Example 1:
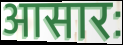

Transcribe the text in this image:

आसारः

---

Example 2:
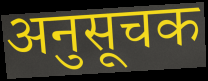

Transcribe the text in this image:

अनुसूचक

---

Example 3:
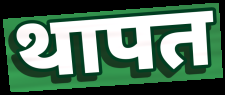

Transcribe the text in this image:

थापत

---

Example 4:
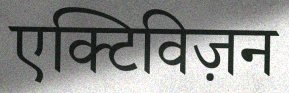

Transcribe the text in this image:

एक्टिविज़न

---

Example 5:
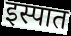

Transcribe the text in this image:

इस्पात